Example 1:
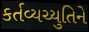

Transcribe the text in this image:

કર્તવ્યચ્યુતિને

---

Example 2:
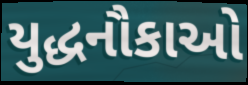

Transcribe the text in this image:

યુદ્ધનૌકાઓ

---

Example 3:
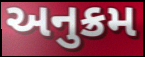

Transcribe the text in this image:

અનુક્રમ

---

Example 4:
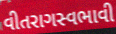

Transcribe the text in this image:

વીતરાગસ્વભાવી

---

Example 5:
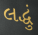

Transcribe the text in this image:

લદ્ધું